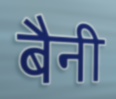
बैनी